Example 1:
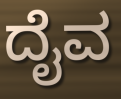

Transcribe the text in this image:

ದೈವ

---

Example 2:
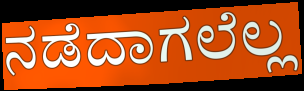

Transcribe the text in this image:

ನಡೆದಾಗಲೆಲ್ಲ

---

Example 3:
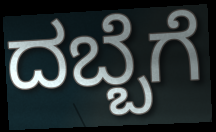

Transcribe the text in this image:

ದಬ್ಬೆಗೆ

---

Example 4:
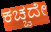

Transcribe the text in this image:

ಕಚ್ಚದೇ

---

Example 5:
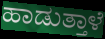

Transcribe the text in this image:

ಹಾಡುತ್ತಾಳೆ